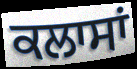
ਕਲਾਸਾਂ